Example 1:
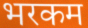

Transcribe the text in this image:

भरकम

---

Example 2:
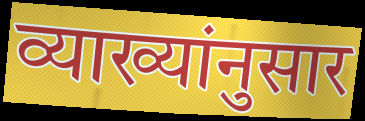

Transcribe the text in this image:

व्याख्यांनुसार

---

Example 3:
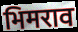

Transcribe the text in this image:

भिमराव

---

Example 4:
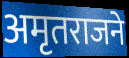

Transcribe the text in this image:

अमृतराजने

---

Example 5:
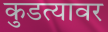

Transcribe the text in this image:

कुडत्यावर